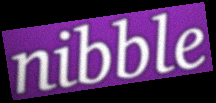
nibble